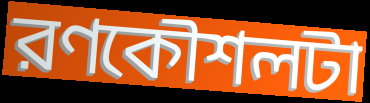
রণকৌশলটা